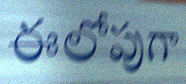
ఈలోపుగా